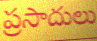
ప్రసాదులు